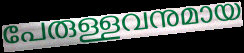
പേരുള്ളവനുമായ